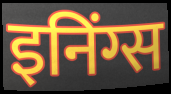
इनिंग्स